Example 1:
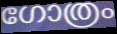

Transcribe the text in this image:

ഗോത്രം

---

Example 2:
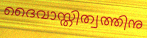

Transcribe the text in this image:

ദൈവാസ്തിത്വത്തിനു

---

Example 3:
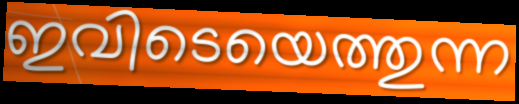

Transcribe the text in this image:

ഇവിടെയെത്തുന്ന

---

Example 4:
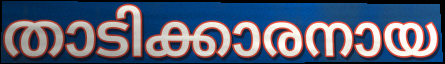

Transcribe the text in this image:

താടിക്കാരനായ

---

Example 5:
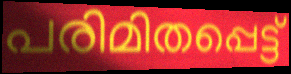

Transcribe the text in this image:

പരിമിതപ്പെട്ട്